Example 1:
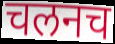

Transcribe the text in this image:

चलनच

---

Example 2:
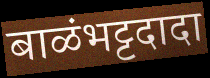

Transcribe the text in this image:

बाळंभट्टदादा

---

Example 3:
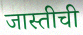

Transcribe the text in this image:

जास्तीची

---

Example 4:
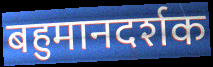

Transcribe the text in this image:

बहुमानदर्शक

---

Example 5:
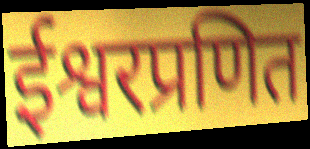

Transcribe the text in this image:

ईश्वरप्रणित